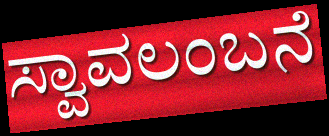
ಸ್ವಾವಲಂಬನೆ